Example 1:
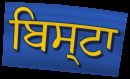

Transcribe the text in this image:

ਬਿਸ੍ਟਾ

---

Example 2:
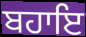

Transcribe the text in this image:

ਬਹਾਇ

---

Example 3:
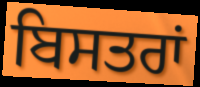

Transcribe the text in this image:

ਬਿਸਤਰਾਂ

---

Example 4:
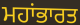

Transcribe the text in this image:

ਮਹਾਂਭਾਰਤ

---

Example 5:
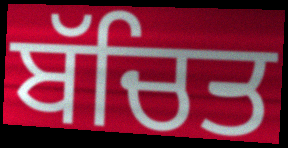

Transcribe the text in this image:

ਬੱਚਿਤ